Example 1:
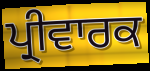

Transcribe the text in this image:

ਪ੍ਰੀਵਾਰਕ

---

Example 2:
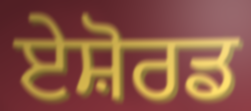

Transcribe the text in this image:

ਏਸ਼ੋਰਡ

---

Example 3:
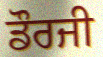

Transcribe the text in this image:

ਡੌਰਜੀ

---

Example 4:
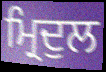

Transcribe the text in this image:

ਮ੍ਰਿਦੁਲ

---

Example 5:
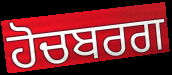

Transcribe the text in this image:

ਹੋਚਬਰਗ